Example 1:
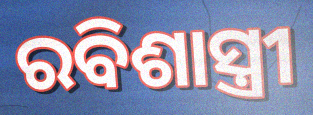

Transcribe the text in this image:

ରବିଶାସ୍ତ୍ରୀ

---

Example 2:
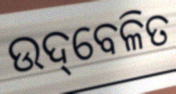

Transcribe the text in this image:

ଉଦ୍‌ବେଳିତ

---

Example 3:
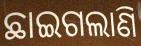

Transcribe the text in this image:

ଛାଇଗଲାଣି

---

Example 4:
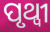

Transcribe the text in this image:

ପୃଥ୍ଵୀ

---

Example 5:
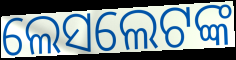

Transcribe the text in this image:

ଲେସଲେଟଙ୍କ